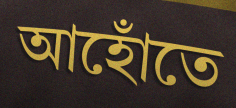
আহোঁতে